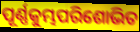
ପୂର୍ଣ୍ଣକୁମ୍ଭପରିଶୋଭିତ